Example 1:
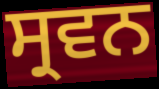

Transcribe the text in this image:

ਸ੍ਰਵਨ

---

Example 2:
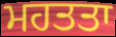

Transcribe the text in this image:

ਮਹਤਤਾ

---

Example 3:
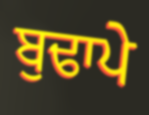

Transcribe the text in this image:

ਬੁਢਾਪੇ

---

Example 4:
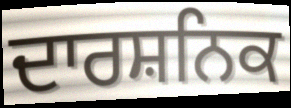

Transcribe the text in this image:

ਦਾਰਸ਼ਨਿਕ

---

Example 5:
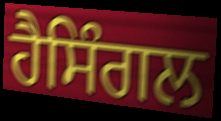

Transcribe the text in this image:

ਹੈਸਿੰਗਲ